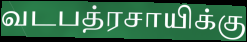
வடபத்ரசாயிக்கு